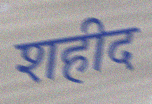
शहीद